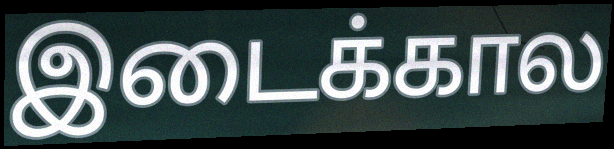
இடைக்கால